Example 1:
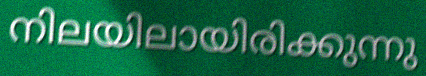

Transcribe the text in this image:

നിലയിലായിരിക്കുന്നു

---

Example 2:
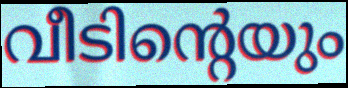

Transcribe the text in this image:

വീടിന്റെയും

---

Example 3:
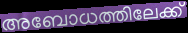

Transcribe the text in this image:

അബോധത്തിലേക്ക്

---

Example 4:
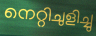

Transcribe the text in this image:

നെറ്റിചുളിച്ചു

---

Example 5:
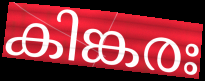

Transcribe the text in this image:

കിങ്കരഃ